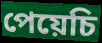
পেয়েচি